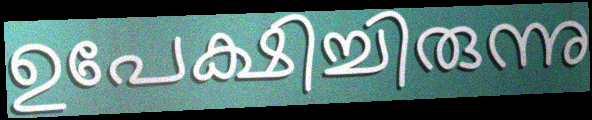
ഉപേക്ഷിച്ചിരുന്നു